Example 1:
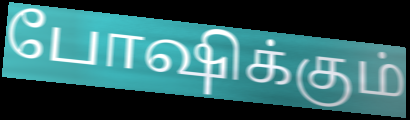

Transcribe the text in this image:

போஷிக்கும்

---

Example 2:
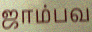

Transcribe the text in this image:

ஜாம்பவ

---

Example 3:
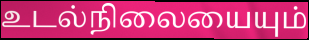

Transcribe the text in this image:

உடல்நிலையையும்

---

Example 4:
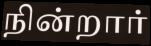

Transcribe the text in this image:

நின்றார்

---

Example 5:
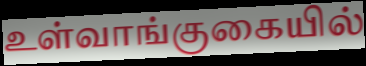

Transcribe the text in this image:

உள்வாங்குகையில்